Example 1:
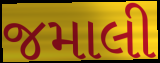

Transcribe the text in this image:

જમાલી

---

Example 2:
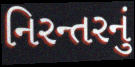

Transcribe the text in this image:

નિરન્તરનું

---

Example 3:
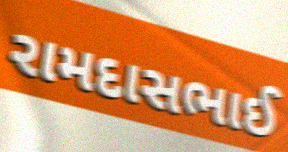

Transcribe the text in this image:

રામદાસભાઈ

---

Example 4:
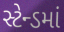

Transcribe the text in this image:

સ્ટેન્ડમાં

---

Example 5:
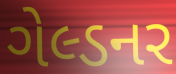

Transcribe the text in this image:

ગેલ્ડનર